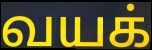
வயக்